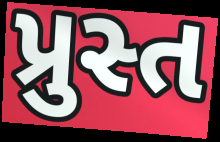
પ્રુસ્ત